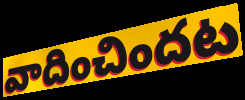
వాదించిందట